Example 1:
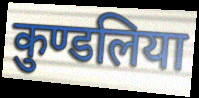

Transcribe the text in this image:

कुण्डलिया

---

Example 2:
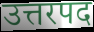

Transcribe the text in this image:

उत्तरपद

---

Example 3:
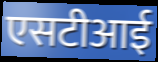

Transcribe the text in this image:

एसटीआई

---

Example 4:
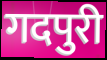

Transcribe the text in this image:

गदपुरी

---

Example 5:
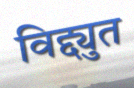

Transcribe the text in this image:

विद्द्युत